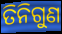
ତିନିଗୁଣ